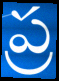
ప్ర